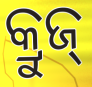
କ୍ରୁଜ୍